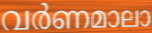
വർണമാലാ